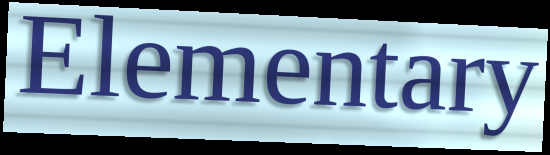
Elementary